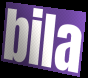
bila